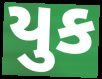
યુક